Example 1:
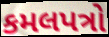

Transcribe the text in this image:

કમલપત્રો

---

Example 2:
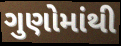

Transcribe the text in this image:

ગુણોમાંથી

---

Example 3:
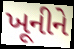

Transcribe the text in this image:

ખૂનીને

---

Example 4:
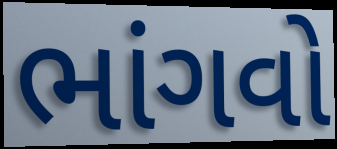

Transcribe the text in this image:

ભાંગવો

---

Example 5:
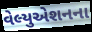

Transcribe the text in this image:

વેલ્યુએશનના